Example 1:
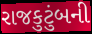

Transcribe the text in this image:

રાજકુટુંબની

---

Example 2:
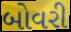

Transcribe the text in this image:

બોવરી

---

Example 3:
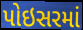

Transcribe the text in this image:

પોઇસરમાં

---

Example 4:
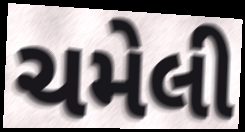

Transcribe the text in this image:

ચમેલી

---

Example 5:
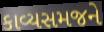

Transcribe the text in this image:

કાવ્યસમજને